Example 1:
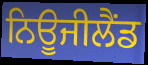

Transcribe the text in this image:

ਨਿਊਜੀਲੈਂਡ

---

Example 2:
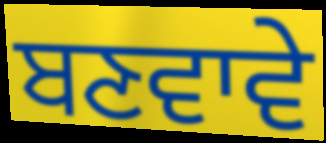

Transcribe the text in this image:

ਬਣਵਾਵੇ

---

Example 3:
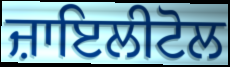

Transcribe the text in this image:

ਜ਼ਾਇਲੀਟੋਲ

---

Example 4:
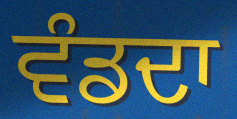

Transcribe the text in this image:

ਵੰਡਦਾ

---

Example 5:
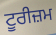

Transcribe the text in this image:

ਟੂਰੀਜ਼ਮ